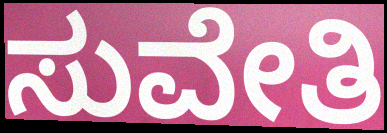
ಸುವೇತಿ